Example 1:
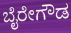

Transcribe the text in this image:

ಬೈರೇಗೌಡ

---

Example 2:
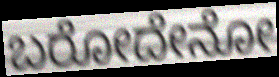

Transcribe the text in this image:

ಬರೋದೇನೋ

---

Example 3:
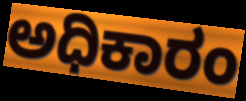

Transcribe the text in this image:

ಅಧಿಕಾರಂ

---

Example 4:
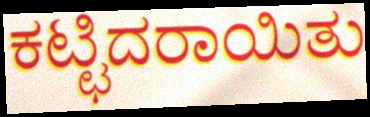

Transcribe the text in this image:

ಕಟ್ಟಿದರಾಯಿತು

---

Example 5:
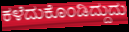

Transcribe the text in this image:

ಕಳೆದುಕೊಂಡಿದ್ದುದು